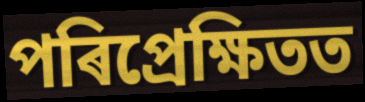
পৰিপ্ৰেক্ষিতত